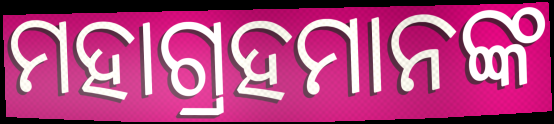
ମହାଗ୍ରହମାନଙ୍କ